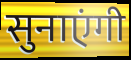
सुनाएंगी